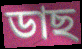
ডাছ